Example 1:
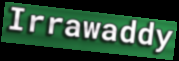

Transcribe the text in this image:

Irrawaddy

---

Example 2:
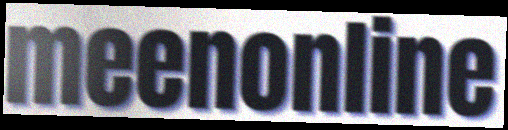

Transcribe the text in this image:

meenonline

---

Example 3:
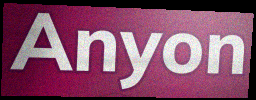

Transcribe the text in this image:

Anyon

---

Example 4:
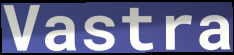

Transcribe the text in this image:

Vastra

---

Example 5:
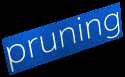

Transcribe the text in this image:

pruning